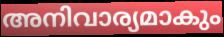
അനിവാര്യമാകും